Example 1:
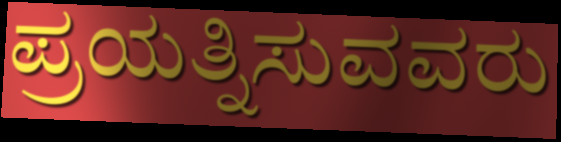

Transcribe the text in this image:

ಪ್ರಯತ್ನಿಸುವವರು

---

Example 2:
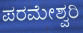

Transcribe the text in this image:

ಪರಮೇಶ್ವರಿ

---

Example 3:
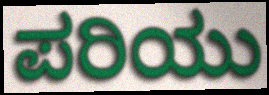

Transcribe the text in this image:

ಪರಿಯು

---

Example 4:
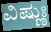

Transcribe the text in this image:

ವಿಷ್ಣುಃ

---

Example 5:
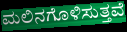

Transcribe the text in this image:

ಮಲಿನಗೊಳಿಸುತ್ತವೆ